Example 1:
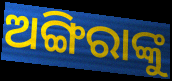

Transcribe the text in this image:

ଅଙ୍ଗିରାଙ୍କୁ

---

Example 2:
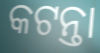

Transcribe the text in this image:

କଟନ୍ତା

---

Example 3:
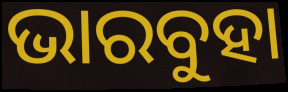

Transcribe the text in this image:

ଭାରବୁହା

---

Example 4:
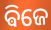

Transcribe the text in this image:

ଵିଜେ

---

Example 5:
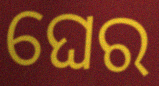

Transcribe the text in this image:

ଘେର